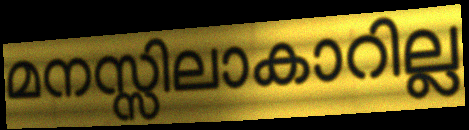
മനസ്സിലാകാറില്ല